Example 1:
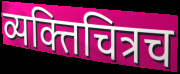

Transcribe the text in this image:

व्यक्तिचित्रच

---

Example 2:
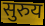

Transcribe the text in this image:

सुरुय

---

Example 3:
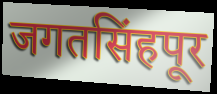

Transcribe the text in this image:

जगतसिंहपूर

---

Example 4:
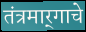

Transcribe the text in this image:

तंत्रमार्गाचे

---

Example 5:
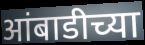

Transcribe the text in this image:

आंबाडीच्या